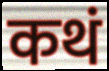
कथं